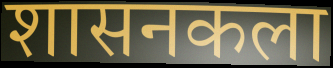
शासनकला